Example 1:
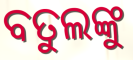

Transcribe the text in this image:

ବତୁଲଙ୍କୁ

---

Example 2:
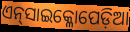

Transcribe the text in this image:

ଏନ୍‌ସାଇକ୍ଳୋପେଡ଼ିଆ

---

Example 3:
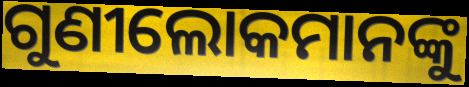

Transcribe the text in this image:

ଗୁଣୀଲୋକମାନଙ୍କୁ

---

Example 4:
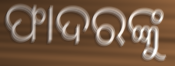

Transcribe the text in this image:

ଫାଦରଙ୍କୁ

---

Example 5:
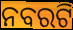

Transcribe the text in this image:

ନବରଟି